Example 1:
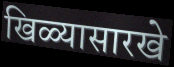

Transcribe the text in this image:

खिळ्यासारखे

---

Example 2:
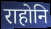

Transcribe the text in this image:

राहोनि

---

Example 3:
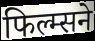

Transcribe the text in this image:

फिल्म्सने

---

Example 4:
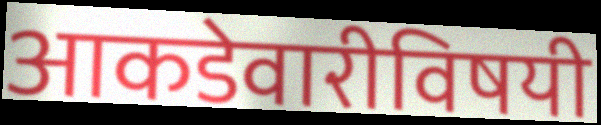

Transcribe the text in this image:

आकडेवारीविषयी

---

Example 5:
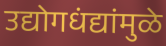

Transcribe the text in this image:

उद्योगधंद्यांमुळे